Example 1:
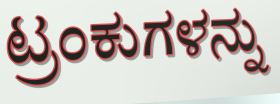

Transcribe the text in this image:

ಟ್ರಂಕುಗಳನ್ನು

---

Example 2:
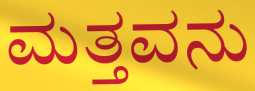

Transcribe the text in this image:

ಮತ್ತವನು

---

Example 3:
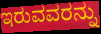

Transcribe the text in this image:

ಇರುವವರನ್ನು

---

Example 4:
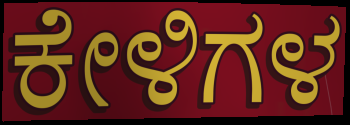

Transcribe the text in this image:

ಕೇಳಿಗಳ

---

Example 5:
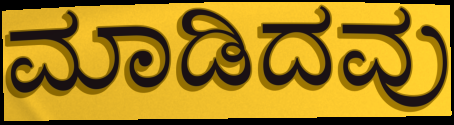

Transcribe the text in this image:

ಮಾಡಿದವು